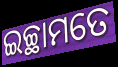
ଇଚ୍ଛାମତେ